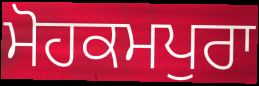
ਮੋਹਕਮਪੁਰਾ